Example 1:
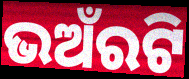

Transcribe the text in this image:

ଭଅଁରଟି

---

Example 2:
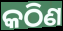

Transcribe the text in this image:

କଠିଣ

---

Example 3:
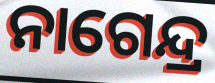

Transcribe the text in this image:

ନାଗେନ୍ଦ୍ର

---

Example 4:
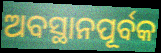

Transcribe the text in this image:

ଅବସ୍ଥାନପୂର୍ବକ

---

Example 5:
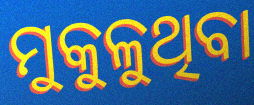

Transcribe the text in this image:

ମୁକୁଳୁଥିବା